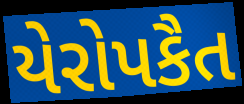
યેરોપકૈત